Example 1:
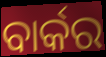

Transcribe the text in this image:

ବାର୍କର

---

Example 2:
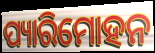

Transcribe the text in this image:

ପ୍ୟାରିମୋହନ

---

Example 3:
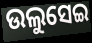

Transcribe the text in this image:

ଉଲୁସେଇ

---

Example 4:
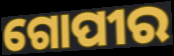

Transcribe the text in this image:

ଗୋପୀର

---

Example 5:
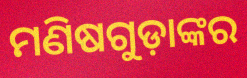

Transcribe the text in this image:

ମଣିଷଗୁଡ଼ାଙ୍କର